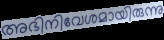
അഭിനിവേശമായിരുന്നു